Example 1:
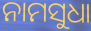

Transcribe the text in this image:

ନାମସୁଧା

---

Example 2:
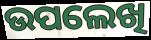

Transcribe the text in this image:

ଉପଲେଖି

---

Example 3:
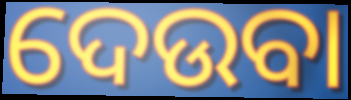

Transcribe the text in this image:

ଦେଉବା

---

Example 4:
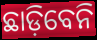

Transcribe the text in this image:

ଛାଡ଼ିବେନି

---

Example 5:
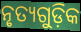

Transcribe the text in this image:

ନୃତ୍ୟଗୁଡ଼ିକ